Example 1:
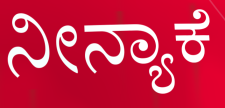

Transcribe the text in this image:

ನೀನ್ಯಾಕೆ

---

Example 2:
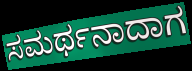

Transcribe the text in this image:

ಸಮರ್ಥನಾದಾಗ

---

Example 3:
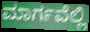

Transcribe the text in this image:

ಮಾರ್ಗವೆಲ್ಲಿ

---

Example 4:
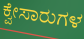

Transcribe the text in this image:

ಕ್ವೇಸಾರುಗಳ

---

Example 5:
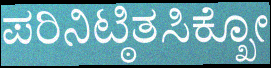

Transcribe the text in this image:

ಪರಿನಿಟ್ಠಿತಸಿಕ್ಖೋ